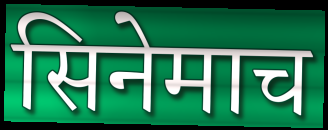
सिनेमाच